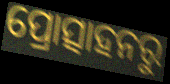
ପ୍ରୋତ୍ସାହନରୁ